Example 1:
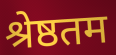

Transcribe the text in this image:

श्रेष्ठतम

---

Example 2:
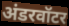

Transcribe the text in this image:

अंडरवॉटर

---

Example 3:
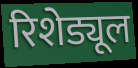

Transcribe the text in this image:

रिशेड्यूल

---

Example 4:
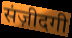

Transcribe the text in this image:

संज़ीदगी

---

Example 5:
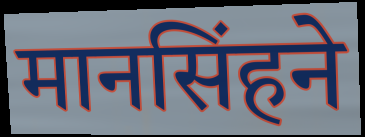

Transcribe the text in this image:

मानसिंहने